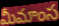
మీమాంస